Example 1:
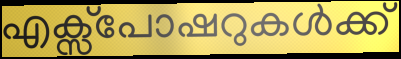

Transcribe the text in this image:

എക്സ്പോഷറുകൾക്ക്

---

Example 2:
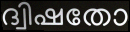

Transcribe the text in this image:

ദ്വിഷതോ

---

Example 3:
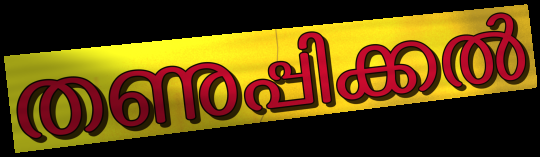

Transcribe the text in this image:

തണുപ്പിക്കൽ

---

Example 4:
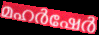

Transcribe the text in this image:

മഹർഷേർ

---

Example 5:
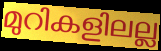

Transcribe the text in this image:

മുറികളിലല്ല